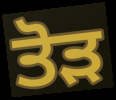
ਤੋੜ